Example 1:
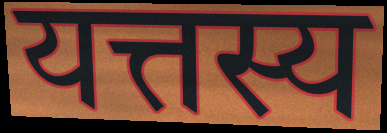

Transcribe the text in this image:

यत्तस्य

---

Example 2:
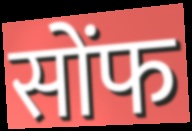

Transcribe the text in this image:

सोंफ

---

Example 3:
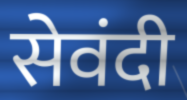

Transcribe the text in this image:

सेवंदी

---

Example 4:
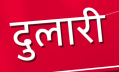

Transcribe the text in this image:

दुलारी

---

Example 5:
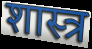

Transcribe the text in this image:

शास्त्र